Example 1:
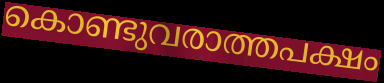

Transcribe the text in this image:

കൊണ്ടുവരാത്തപക്ഷം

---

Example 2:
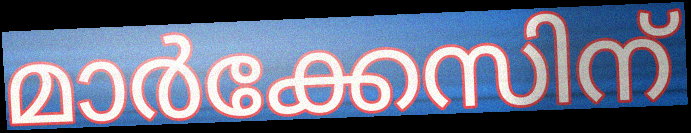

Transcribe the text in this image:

മാർക്കേസിന്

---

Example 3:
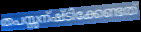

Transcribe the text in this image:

തപസ്സന്ഷ്ടിക്കേണ്ടത്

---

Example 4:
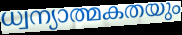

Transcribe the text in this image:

ധ്വന്യാത്മകതയും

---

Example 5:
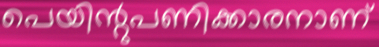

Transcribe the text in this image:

പെയിന്റുപണിക്കാരനാണ്